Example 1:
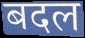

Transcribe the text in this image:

बदल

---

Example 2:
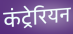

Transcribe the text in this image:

कंट्रेरियन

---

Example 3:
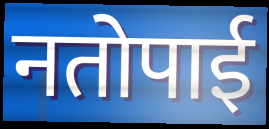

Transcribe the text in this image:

नतोपाई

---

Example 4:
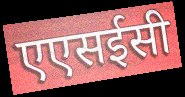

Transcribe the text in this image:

एएसईसी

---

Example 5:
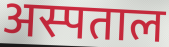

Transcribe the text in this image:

अस्पताल